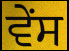
ਵੇਂਸ